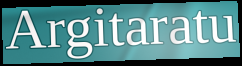
Argitaratu